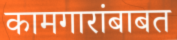
कामगारांबाबत